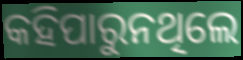
କହିପାରୁନଥିଲେ